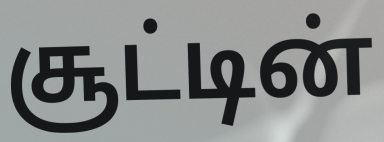
சூட்டின்